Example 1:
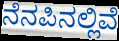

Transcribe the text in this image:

ನೆನಪಿನಲ್ಲಿವೆ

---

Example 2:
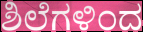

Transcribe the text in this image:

ಶಿಲೆಗಳಿಂದ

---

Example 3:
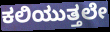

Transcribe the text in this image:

ಕಲಿಯುತ್ತಲೇ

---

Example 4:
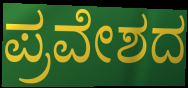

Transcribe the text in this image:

ಪ್ರವೇಶದ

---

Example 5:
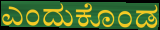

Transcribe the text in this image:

ಎಂದುಕೊಂಡ